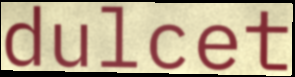
dulcet